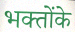
भक्तोंके